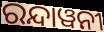
ରନ୍ଦାୱନୀ